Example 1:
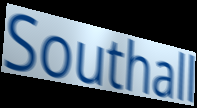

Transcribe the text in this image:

Southall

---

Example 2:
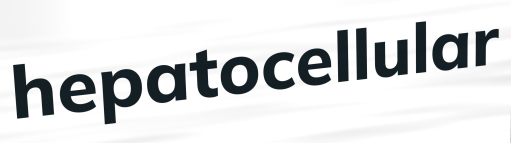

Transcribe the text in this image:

hepatocellular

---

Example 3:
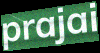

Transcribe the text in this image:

prajai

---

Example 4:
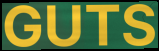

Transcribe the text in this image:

GUTS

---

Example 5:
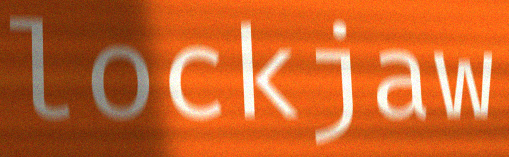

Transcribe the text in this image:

lockjaw